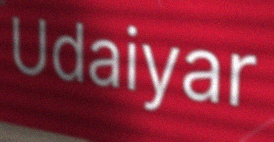
Udaiyar